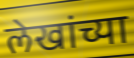
लेखांच्या